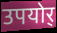
उपयोर्